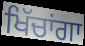
ਖਿੱਚਾਂਗਾ